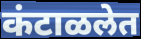
कंटाळलेत